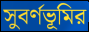
সুবর্ণভূমির